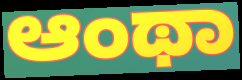
ಆಂಥಾ